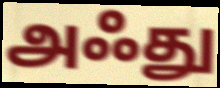
அஃது